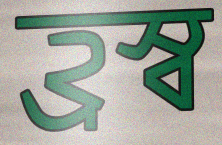
হ্ৰস্ব